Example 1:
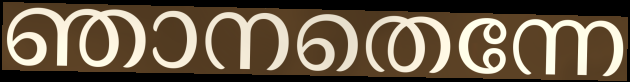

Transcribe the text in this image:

ഞാനതെന്നേ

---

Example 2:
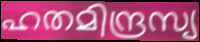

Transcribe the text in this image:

ഹതമിന്ദ്രസ്യ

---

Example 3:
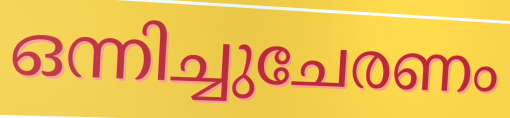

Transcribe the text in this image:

ഒന്നിച്ചുചേരണം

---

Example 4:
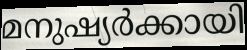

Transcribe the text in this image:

മനുഷ്യർക്കായി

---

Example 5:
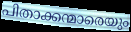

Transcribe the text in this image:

പിതാക്കന്മാരെയും